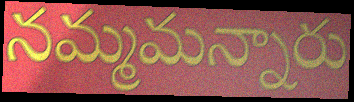
నమ్మమన్నారు